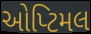
ઓપ્ટિમલ